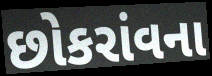
છોકરાંવના